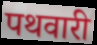
पथवारी